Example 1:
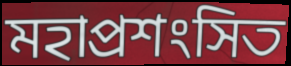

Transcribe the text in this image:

মহাপ্রশংসিত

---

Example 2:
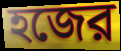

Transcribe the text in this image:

হজের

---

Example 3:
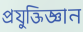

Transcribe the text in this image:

প্রযুক্তিজ্ঞান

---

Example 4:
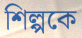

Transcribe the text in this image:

শিল্পকে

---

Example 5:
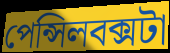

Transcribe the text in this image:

পেন্সিলবক্সটা